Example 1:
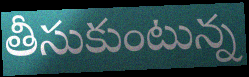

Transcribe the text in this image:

తీసుకుంటున్న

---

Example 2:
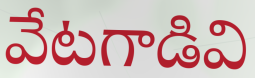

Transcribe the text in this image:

వేటగాడివి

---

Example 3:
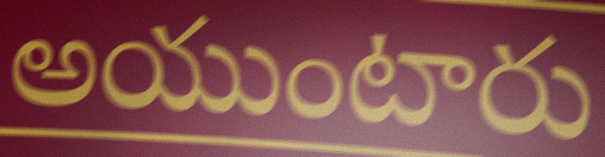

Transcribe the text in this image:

అయుంటారు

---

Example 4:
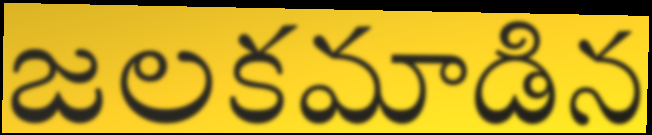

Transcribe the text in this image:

జలకమాడిన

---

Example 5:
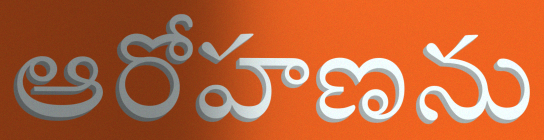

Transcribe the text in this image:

ఆరోహణను